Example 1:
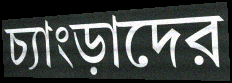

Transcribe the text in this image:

চ্যাংড়াদের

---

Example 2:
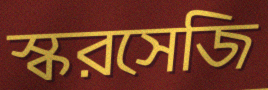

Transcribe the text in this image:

স্করসেজি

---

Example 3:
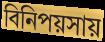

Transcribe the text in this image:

বিনিপয়সায়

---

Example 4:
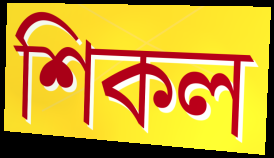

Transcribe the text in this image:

শিকল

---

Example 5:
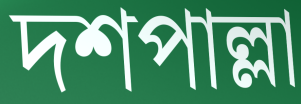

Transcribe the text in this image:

দশপাল্লা